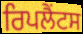
ਰਿਪਲੈਂਟਸ